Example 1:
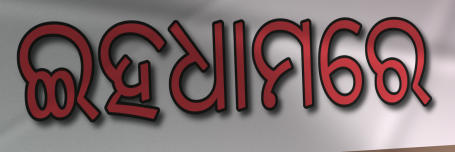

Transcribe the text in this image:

ଇହଧାମରେ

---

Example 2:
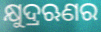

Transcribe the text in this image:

କ୍ଷୁଦ୍ରଋଣର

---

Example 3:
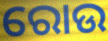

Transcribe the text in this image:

ରୋଉ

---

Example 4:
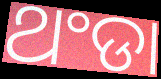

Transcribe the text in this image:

ଥଂଡା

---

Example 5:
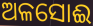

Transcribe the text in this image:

ଅଳସୋଈ